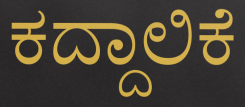
ಕದ್ದಾಲಿಕೆ